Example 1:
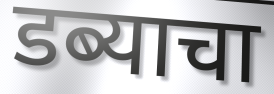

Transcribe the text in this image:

डब्याचा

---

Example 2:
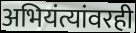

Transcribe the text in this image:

अभियंत्यांवरही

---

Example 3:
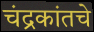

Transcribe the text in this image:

चंद्रकांतचे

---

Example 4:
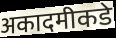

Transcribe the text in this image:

अकादमीकडे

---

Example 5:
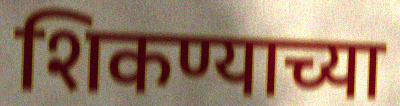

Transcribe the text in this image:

शिकण्याच्या